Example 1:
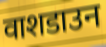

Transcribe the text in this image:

वाशडाउन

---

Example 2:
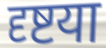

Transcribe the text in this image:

दृष्टया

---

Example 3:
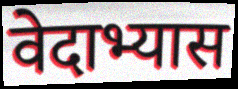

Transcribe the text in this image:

वेदाभ्यास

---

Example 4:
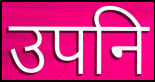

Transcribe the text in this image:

उपनि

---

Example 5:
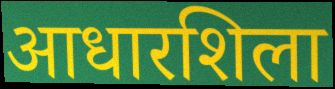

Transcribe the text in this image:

आधारशिला